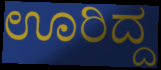
ಊರಿದ್ದ